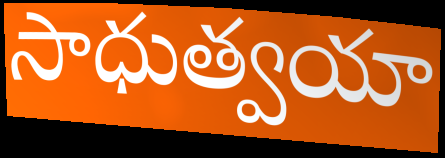
సాధుత్వయా